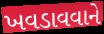
ખવડાવવાને